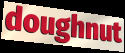
doughnut